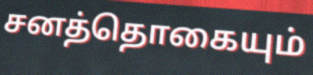
சனத்தொகையும்